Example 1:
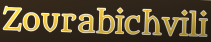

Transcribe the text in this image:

Zourabichvili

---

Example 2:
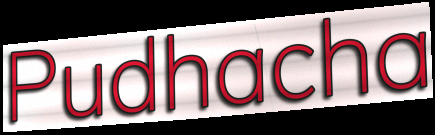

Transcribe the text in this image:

Pudhacha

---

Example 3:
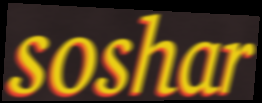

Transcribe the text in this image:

soshar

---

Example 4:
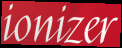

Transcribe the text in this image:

ionizer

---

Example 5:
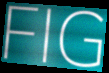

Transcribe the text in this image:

FIG